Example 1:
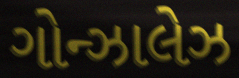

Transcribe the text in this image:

ગોન્ઝાલેઝ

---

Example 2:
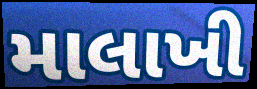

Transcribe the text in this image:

માલાખી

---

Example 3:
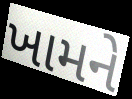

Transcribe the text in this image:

ખામને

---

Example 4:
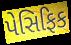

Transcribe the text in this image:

પેસિફિક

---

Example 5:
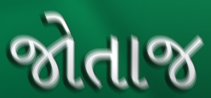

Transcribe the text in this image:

જોતાજ